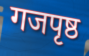
गजपृष्ठ